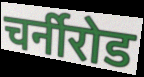
चर्नीरोड